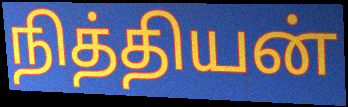
நித்தியன்